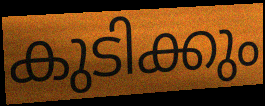
കുടിക്കും